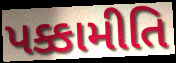
પક્કામીતિ